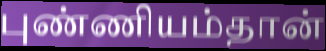
புண்ணியம்தான்